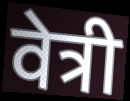
वेत्री